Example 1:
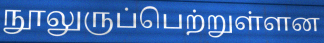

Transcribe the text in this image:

நூலுருப்பெற்றுள்ளன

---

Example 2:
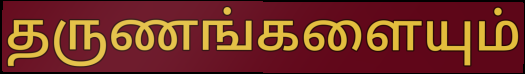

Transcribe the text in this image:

தருணங்களையும்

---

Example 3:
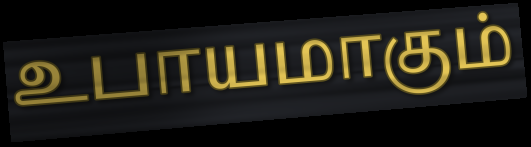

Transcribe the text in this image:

உபாயமாகும்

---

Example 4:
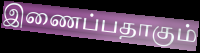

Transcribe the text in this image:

இணைப்பதாகும்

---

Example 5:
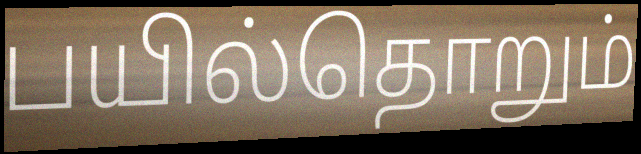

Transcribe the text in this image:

பயில்தொறும்